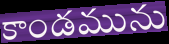
కాండమును